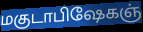
மகுடாபிஷேகஞ்